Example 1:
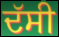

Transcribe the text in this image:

ਦੱਸੀ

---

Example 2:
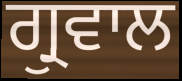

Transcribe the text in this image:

ਗ੍ਰੁਵਾਲ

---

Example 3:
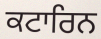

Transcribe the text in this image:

ਕਟਾਰਿਨ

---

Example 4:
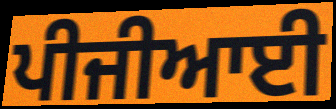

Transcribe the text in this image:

ਪੀਜੀਆਈ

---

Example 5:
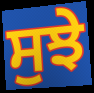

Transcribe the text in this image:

ਸੁਝੇ